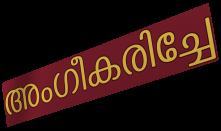
അംഗീകരിച്ചേ